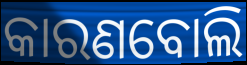
କାରଣବୋଲି